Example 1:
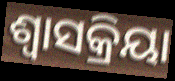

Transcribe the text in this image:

ଶ୍ବାସକ୍ରିୟା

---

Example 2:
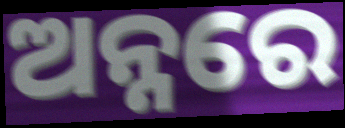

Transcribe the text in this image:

ଅନ୍ନରେ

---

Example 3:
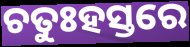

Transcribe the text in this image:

ଚତୁଃହସ୍ତରେ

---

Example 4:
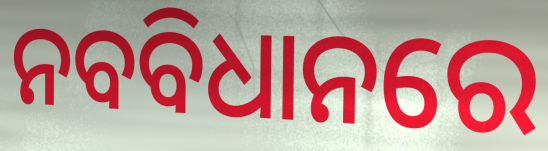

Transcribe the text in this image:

ନବବିଧାନରେ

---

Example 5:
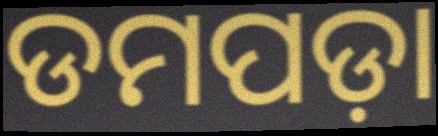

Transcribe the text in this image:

ଡମପଡ଼ା